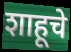
शाहूचे